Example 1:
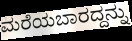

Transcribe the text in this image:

ಮರೆಯಬಾರದ್ದನ್ನು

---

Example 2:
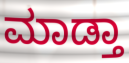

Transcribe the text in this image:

ಮಾಡ್ತಾ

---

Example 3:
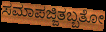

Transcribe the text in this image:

ಸಮಾಪಜ್ಜಿತಬ್ಬತೋ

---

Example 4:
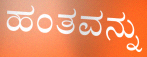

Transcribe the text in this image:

ಹಂತವನ್ನು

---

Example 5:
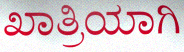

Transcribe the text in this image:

ಖಾತ್ರಿಯಾಗಿ